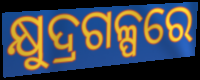
କ୍ଷୁଦ୍ରଗଳ୍ପରେ